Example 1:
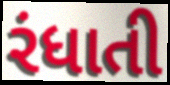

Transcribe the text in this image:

રંધાતી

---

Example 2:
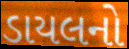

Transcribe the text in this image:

ડાયલનો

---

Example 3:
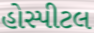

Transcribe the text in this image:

હોસ્પીટલ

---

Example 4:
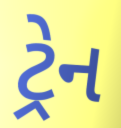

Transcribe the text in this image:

ટ્રેન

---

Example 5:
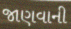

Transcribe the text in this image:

જાણવાની